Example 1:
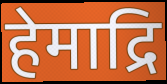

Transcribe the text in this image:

हेमाद्रि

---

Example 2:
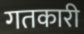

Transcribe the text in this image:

गतकारी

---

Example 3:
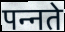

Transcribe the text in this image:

पन्नते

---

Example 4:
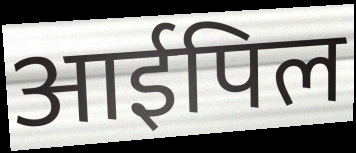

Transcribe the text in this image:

आईपिल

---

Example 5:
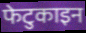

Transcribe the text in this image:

फेटुकाइन